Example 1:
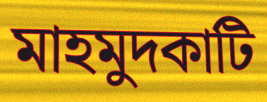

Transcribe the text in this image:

মাহমুদকাটি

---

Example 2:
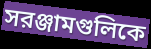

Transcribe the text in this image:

সরঞ্জামগুলিকে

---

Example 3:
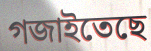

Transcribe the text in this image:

গজাইতেছে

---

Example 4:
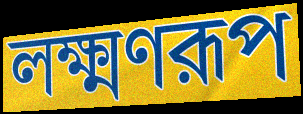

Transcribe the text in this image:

লক্ষ্মণরূপ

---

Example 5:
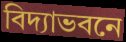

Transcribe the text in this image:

বিদ্যাভবনে